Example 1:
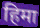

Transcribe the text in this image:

हिमा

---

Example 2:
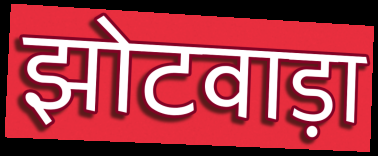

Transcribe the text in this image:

झोटवाड़ा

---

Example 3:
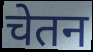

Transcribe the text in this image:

चेतन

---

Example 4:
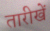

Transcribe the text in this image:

तारीखें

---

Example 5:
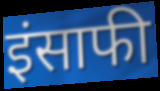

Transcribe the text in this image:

इंसाफी